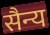
सैन्‍य